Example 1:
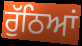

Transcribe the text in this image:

ਰੁੱਠਿਆਂ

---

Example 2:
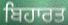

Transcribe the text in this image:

ਬਿਹਾਰਤ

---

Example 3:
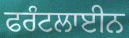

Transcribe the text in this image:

ਫਰੰਟਲਾਈਨ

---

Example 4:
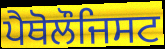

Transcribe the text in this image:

ਪੈਥੋਲੌਜਿਸਟ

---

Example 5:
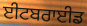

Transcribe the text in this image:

ਈਟਬਰਾਈਡ